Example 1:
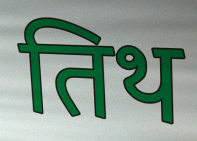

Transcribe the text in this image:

तिथ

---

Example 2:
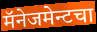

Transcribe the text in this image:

मॅनेजमेन्टचा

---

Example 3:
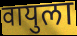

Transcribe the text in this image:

वायुला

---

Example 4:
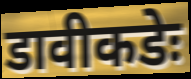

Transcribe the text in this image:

डावीकडेः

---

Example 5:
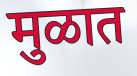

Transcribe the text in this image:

मुळात